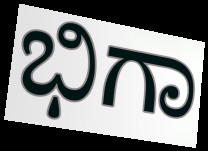
ಭಿಗಾ